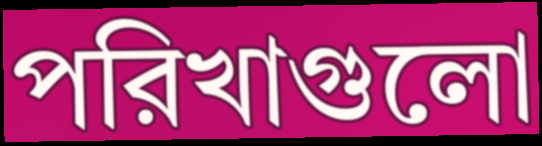
পরিখাগুলো